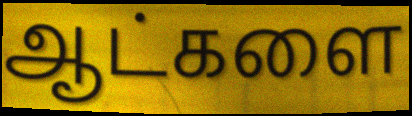
ஆட்களை